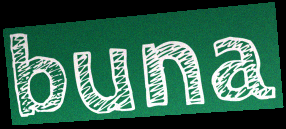
buna